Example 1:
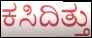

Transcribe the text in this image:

ಕಸಿದಿತ್ತು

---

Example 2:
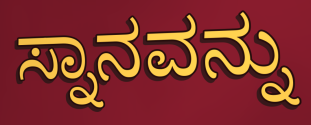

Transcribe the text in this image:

ಸ್ನಾನವನ್ನು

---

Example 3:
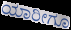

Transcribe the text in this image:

ಯಾರೀಗೂ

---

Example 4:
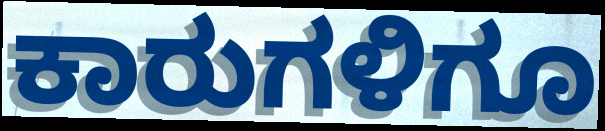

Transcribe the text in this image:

ಕಾರುಗಳಿಗೂ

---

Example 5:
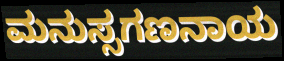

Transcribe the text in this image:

ಮನುಸ್ಸಗಣನಾಯ